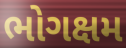
ભોગક્ષમ